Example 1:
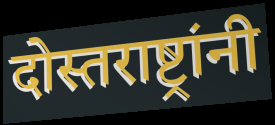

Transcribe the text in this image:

दोस्तराष्ट्रांनी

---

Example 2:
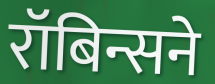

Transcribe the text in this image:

रॉबिन्सने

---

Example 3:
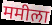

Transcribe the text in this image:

ममीला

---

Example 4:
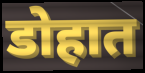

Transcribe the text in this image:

डोहात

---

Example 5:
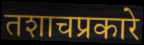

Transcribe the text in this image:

तशाचप्रकारे